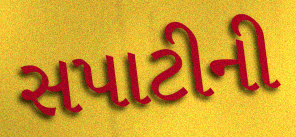
સપાટીની